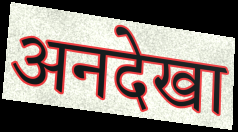
अनदेखा